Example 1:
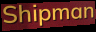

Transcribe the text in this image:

Shipman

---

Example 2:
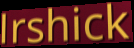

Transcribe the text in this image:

Irshick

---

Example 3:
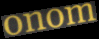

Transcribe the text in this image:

onom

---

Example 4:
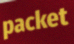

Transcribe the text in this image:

packet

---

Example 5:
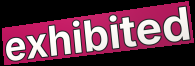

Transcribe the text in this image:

exhibited